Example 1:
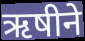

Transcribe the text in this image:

ऋषीने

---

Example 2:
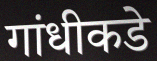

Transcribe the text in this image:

गांधीकडे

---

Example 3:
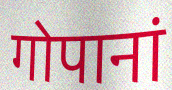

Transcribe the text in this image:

गोपानां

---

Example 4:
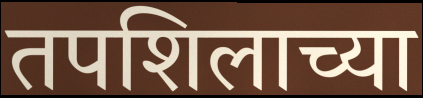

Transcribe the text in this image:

तपशिलाच्या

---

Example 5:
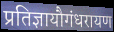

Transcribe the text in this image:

प्रतिज्ञायौगंधरायण